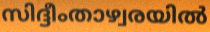
സിദ്ദീംതാഴ്വരയിൽ